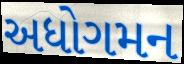
અધોગમન